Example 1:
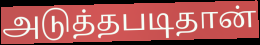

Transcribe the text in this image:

அடுத்தபடிதான்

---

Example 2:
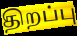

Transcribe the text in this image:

திறப்பு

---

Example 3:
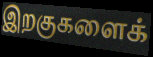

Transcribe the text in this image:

இறகுகளைக்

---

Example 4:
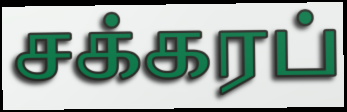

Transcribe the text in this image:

சக்கரப்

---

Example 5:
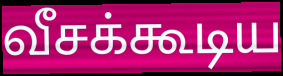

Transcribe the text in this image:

வீசக்கூடிய